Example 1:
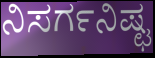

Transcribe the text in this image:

ನಿಸರ್ಗನಿಷ್ಟ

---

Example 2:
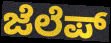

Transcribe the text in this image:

ಜೆಲೆಪ್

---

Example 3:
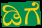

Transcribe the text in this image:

ಡಿಗೆ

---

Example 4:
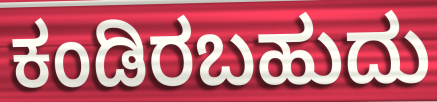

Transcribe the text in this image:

ಕಂಡಿರಬಹುದು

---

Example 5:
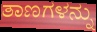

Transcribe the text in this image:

ತಾಣಗಳನ್ನು